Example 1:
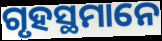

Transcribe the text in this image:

ଗୃହସ୍ଥମାନେ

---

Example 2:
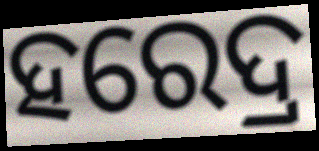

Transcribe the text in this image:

ହରେଦ୍ର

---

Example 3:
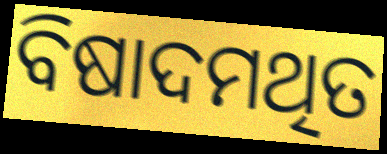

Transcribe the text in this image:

ବିଷାଦମଥିତ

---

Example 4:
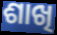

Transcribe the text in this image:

ଶାଖି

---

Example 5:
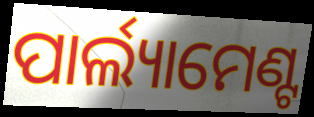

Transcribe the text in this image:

ପାର୍ଲ୍ୟାମେଣ୍ଟ